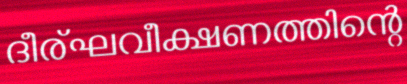
ദീര്ഘവീക്ഷണത്തിന്റെ